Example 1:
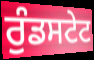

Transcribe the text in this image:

ਰੁੰਡਸਟੇਟ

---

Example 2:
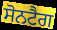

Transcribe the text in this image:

ਸੋਨਟੈਗ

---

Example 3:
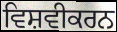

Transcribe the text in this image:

ਵਿਸ਼ਵੀਕਰਨ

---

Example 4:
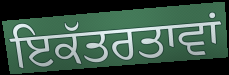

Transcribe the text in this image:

ਇਕੱਤਰਤਾਵਾਂ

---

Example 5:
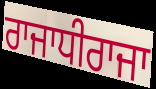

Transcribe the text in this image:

ਰਾਜਾਧੀਰਾਜਾ